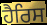
ਹੈਰਿਸ